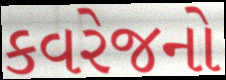
કવરેજનો